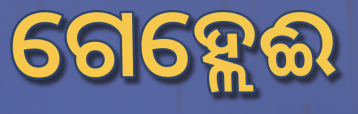
ଗେହ୍ଲେଈ